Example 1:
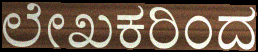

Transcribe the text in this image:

ಲೇಖಕರಿಂದ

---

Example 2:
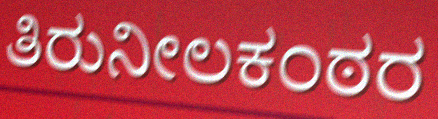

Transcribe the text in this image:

ತಿರುನೀಲಕಂಠರ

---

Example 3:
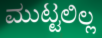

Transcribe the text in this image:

ಮುಟ್ಟಲಿಲ್ಲ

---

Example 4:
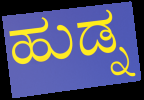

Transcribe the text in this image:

ಹುಡ್ನ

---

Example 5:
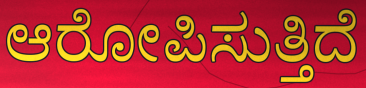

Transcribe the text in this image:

ಆರೋಪಿಸುತ್ತಿದೆ